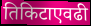
तिकिटाएवढी